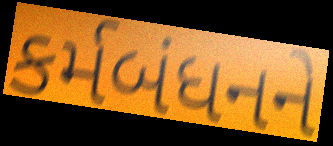
કર્મબંધનને